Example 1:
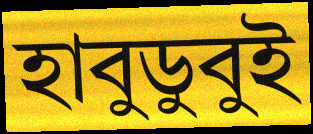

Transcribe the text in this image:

হাবুডুবুই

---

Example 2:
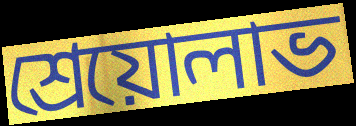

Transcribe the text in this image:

শ্রেয়োলাভ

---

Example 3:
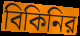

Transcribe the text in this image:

বিকিনির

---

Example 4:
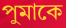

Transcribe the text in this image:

পুমাকে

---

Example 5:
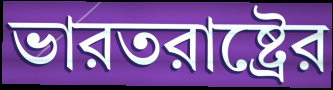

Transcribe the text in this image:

ভারতরাষ্ট্রের